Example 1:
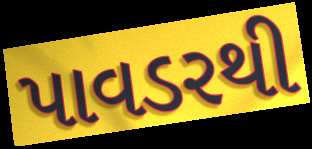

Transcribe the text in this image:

પાવડરથી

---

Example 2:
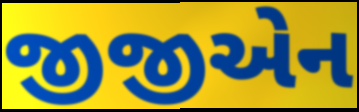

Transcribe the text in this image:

જીજીએન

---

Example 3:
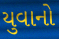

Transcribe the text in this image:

યુવાનો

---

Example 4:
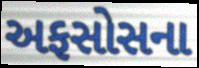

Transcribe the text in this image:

અફસોસના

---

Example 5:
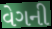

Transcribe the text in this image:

વેગની